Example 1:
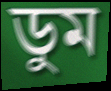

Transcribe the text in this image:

ডুম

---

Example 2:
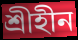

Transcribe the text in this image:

শ্রীহীন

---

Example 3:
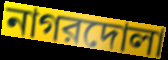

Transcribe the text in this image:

নাগরদোলা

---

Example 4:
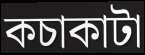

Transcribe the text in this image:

কচাকাটা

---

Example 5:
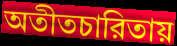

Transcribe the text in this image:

অতীতচারিতায়